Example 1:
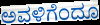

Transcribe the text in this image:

ಅವಳಿಗೆಂದೂ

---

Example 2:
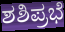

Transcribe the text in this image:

ಶಶಿಪ್ರಭೆ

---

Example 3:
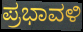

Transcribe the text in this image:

ಪ್ರಭಾವಳಿ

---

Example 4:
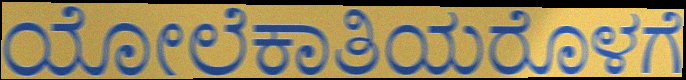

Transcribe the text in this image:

ಯೋಲೆಕಾತಿಯರೊಳಗೆ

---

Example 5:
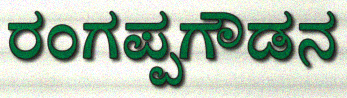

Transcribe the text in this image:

ರಂಗಪ್ಪಗೌಡನ